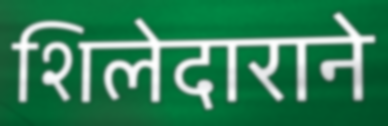
शिलेदाराने